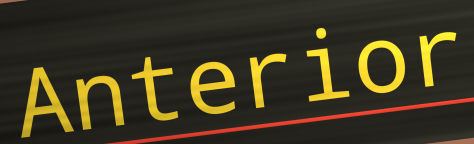
Anterior